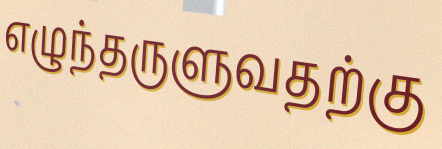
எழுந்தருளுவதற்கு